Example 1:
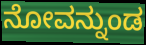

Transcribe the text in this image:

ನೋವನ್ನುಂಡ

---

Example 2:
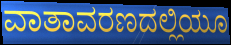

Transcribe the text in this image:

ವಾತಾವರಣದಲ್ಲಿಯೂ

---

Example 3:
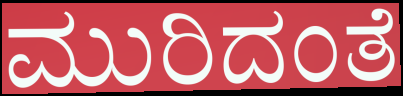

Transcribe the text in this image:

ಮುರಿದಂತೆ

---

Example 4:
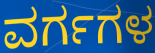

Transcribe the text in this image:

ವರ್ಗಗಳ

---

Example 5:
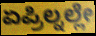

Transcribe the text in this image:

ಏಪ್ರಿಲ್ನಲ್ಲೇ